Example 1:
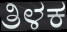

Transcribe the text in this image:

ತಿಳಕ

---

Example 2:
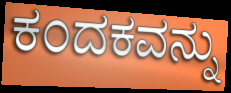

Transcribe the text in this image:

ಕಂದಕವನ್ನು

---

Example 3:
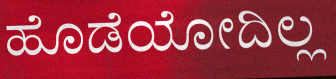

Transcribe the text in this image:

ಹೊಡೆಯೋದಿಲ್ಲ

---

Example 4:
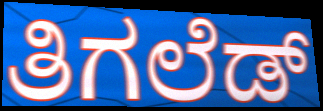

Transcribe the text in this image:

ತಿಗಲೆಡ್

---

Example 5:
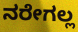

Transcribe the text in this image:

ನರೇಗಲ್ಲ